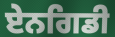
ਏਨਗਿਡੀ